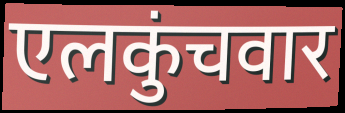
एलकुंचवार